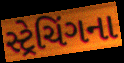
સ્ટ્રેચિંગના